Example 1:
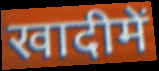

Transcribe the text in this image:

खादीमें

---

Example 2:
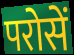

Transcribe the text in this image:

परोसें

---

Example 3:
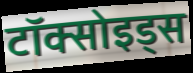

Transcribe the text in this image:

टॉक्सोइड्स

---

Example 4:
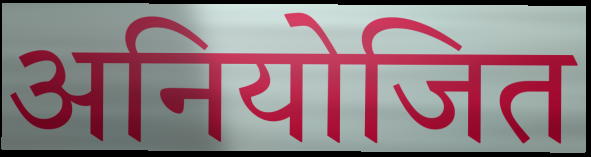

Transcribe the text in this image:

अनियोजित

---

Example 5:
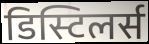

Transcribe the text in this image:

डिस्टिलर्स